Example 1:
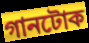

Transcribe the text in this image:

গানটোক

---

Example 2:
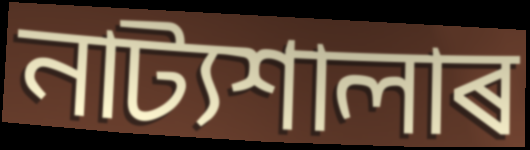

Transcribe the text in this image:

নাট্যশালাৰ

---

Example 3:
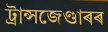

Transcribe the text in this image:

ট্ৰান্সজেণ্ডাৰৰ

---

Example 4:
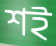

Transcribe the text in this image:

শই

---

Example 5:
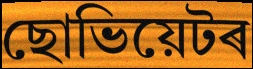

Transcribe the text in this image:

ছোভিয়েটৰ